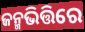
ଜନ୍ମଭିତ୍ତିରେ